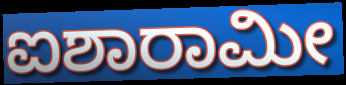
ಐಶಾರಾಮೀ